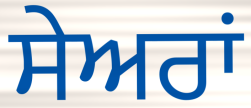
ਸੇਅਰਾਂ